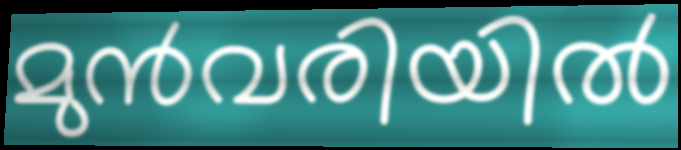
മുൻവരിയിൽ